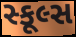
સ્કૂલ્સ